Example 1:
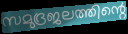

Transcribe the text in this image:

സമുദ്രജലത്തിന്റെ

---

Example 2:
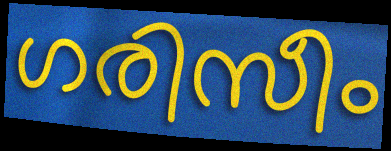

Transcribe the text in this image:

ഗരിസീം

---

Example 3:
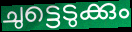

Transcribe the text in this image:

ചുട്ടെടുക്കും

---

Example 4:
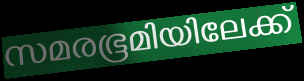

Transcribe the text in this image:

സമരഭൂമിയിലേക്ക്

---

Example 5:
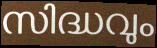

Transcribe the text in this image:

സിദ്ധവും